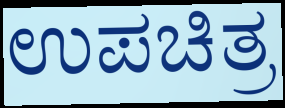
ಉಪಚಿತ್ರ